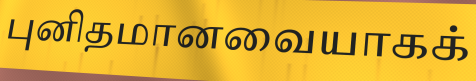
புனிதமானவையாகக்